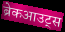
ब्रेकआउट्स